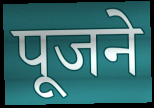
पूजने